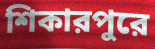
শিকারপুরে